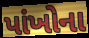
પાંખોના